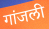
गांजली